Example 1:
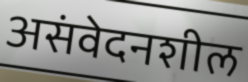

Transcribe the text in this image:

असंवेदनशील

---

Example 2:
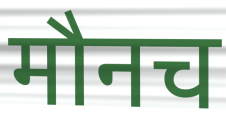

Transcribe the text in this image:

मौनच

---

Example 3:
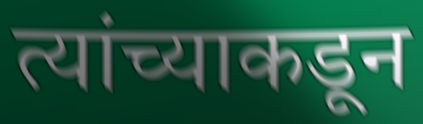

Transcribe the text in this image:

त्यांच्याकडून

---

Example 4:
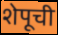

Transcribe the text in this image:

शेपूची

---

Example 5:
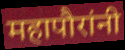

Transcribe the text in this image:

महापौरांनी